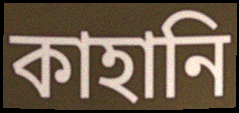
কাহানি